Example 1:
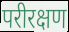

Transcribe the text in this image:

परीरक्षण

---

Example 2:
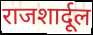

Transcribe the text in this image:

राजशार्दूल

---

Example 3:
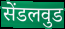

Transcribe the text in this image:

सेंडलवुड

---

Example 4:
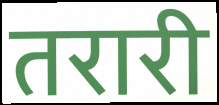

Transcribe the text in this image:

तरारी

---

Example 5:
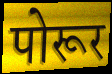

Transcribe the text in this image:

पोरूर